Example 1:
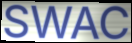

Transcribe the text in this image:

SWAC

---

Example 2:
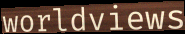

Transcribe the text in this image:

worldviews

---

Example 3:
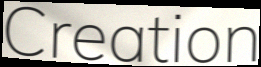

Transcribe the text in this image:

Creation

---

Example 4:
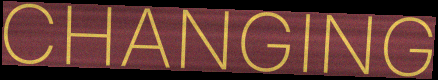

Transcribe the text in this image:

CHANGING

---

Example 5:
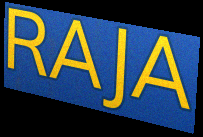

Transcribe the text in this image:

RAJA